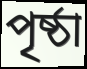
পৃষ্ঠা